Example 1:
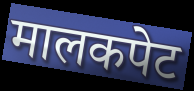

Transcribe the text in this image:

मालकपेट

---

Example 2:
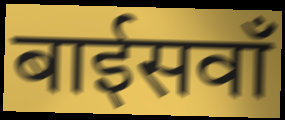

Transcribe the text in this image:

बाईसवाँ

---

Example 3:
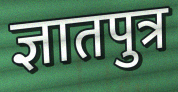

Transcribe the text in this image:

ज्ञातपुत्र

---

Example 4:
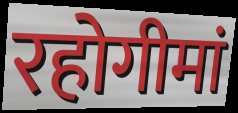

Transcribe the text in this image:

रहोगीमां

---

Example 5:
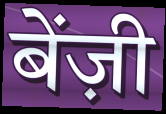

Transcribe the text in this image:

बेंज़ी